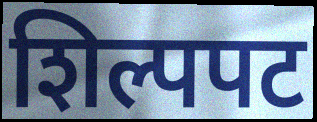
शिल्पपट